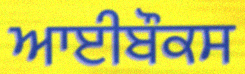
ਆਈਬੌਕਸ